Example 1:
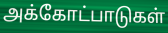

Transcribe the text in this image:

அக்கோட்பாடுகள்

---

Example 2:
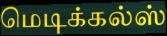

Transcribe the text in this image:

மெடிக்கல்ஸ்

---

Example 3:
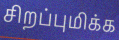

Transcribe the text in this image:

சிறப்புமிக்க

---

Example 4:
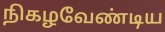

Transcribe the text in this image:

நிகழவேண்டிய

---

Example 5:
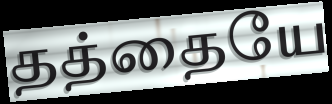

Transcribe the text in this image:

தத்தையே